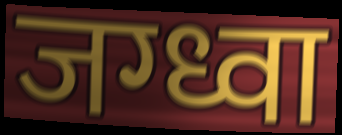
जग्ध्वा